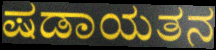
ಷಡಾಯತನ